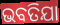
ଭବତିଯା